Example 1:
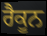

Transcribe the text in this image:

ਰੈਕੂਨ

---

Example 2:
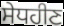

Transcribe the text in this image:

ਸੇਧਹੀਣ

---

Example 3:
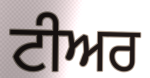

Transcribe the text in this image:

ਟੀਅਰ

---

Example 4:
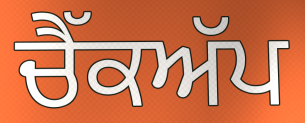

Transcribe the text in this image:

ਚੈੱਕਅੱਪ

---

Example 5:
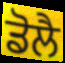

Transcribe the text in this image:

ਡੋਲੈ